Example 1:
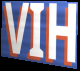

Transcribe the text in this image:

VIH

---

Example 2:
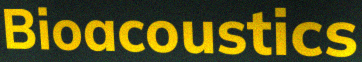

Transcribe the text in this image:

Bioacoustics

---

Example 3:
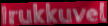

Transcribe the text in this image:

Irukkuvel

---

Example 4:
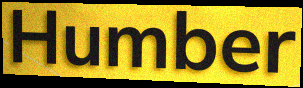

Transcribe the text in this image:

Humber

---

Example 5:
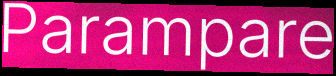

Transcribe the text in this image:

Parampare